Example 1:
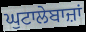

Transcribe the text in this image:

ਘੁਟਾਲੇਬਾਜ਼ਾਂ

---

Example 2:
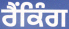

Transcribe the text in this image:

ਰੈੰਕਿੰਗ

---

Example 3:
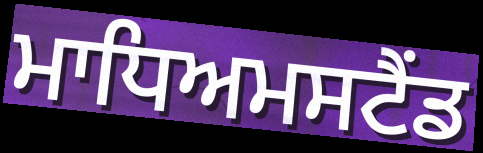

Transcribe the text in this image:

ਮਾਧਿਅਮਸਟੈਂਡ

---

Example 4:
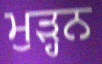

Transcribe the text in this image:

ਮੁੜ੍ਹਨ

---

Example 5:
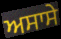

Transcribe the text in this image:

ਅਸਾਸੇ